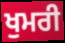
ਖੁਮਰੀ